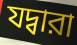
যদ্বারা